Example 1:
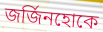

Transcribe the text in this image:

জর্জিনহোকে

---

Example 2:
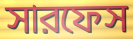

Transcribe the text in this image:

সারফেস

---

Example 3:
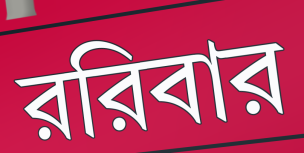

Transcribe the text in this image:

ররিবার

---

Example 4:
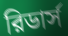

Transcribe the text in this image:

রিডার্স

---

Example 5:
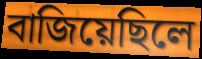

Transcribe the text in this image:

বাজিয়েছিলে